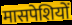
मासपेशियों